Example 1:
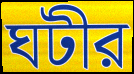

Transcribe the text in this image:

ঘটীর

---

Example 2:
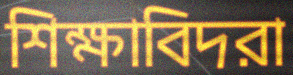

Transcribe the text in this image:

শিক্ষাবিদরা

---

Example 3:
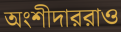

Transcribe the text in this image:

অংশীদাররাও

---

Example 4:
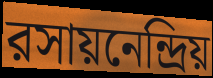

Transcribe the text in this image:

রসায়নেন্দ্রিয়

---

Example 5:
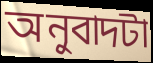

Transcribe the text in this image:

অনুবাদটা